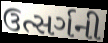
ઉત્સર્ગની